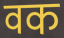
वक